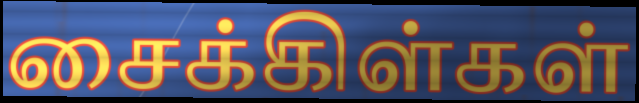
சைக்கிள்கள்